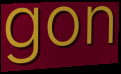
gon